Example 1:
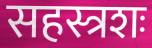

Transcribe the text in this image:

सहस्त्रशः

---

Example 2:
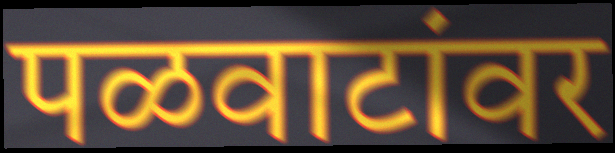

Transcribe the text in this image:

पळवाटांवर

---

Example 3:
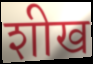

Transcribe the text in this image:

शीख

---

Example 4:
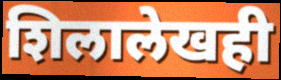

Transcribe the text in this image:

शिलालेखही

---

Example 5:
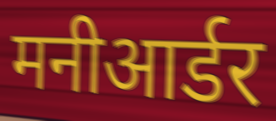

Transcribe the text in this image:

मनीआर्डर